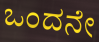
ಒಂದನೇ